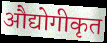
औद्योगीकृत